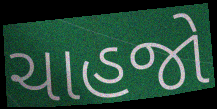
ચાહજો